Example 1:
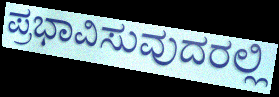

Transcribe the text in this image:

ಪ್ರಭಾವಿಸುವುದರಲ್ಲಿ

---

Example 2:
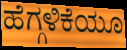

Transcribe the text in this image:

ಹೆಗ್ಗಳಿಕೆಯೂ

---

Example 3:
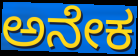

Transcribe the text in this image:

ಅನೇಕ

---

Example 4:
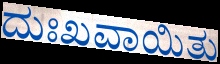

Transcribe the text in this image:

ದುಃಖವಾಯಿತು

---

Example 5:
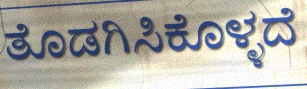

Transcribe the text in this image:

ತೊಡಗಿಸಿಕೊಳ್ಳದೆ